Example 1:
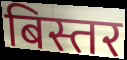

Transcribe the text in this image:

बिस्‍तर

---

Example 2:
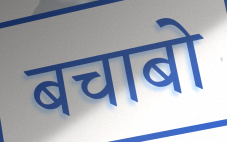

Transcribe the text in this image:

बचाबो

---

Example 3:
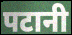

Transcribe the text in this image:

पटानी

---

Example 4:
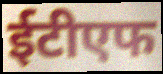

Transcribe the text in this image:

ईटीएफ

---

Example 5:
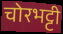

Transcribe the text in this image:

चोरभट्टी